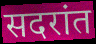
सदरांत